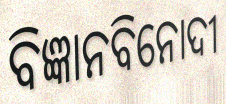
ବିଜ୍ଞାନବିନୋଦୀ